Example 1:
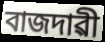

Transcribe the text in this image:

বাজদাৱী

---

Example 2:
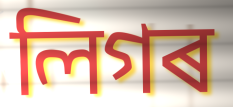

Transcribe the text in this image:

লিগৰ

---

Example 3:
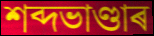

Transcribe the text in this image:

শব্দভাণ্ডাৰ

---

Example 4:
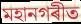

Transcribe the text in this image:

মহানগৰীত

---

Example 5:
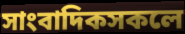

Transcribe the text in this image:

সাংবাদিকসকলে